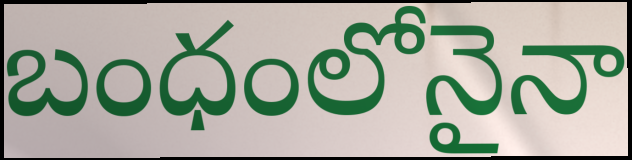
బంధంలోనైనా